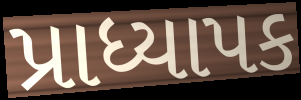
પ્રાધ્યાપક